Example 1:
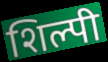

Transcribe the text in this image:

शिल्पी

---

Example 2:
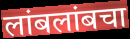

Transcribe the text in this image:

लांबलांबचा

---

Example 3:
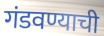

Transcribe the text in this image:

गंडवण्याची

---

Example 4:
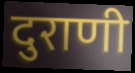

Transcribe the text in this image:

दुराणी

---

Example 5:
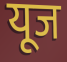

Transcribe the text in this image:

यूज